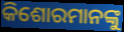
କିଶୋରମାନଙ୍କୁ